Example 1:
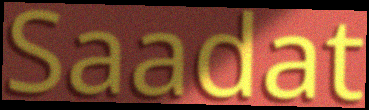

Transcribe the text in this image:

Saadat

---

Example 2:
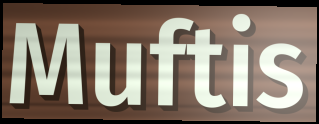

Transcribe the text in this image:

Muftis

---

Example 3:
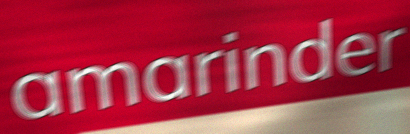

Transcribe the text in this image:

amarinder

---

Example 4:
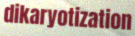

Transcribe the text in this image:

dikaryotization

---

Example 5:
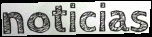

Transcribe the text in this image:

noticias